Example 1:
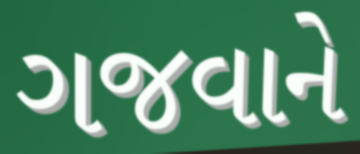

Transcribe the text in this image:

ગજવાને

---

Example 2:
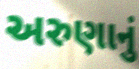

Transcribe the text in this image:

અરુણાનું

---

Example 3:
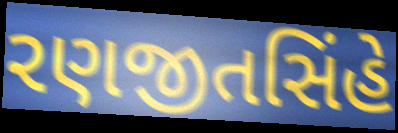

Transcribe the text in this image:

રણજીતસિંહે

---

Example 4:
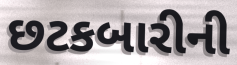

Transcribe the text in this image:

છટકબારીની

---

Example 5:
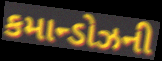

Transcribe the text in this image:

કમાન્ડોઝની